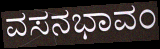
ವಸನಭಾವಂ